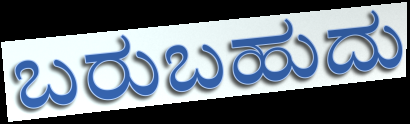
ಬರುಬಹುದು